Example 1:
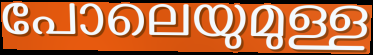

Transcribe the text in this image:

പോലെയുമുള്ള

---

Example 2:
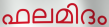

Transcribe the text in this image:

ഫലമിദം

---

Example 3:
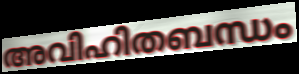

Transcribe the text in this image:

അവിഹിതബന്ധം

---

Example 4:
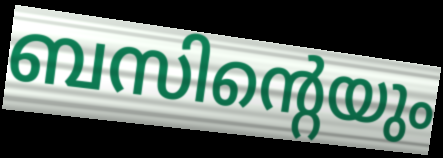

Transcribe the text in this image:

ബസിന്റെയും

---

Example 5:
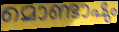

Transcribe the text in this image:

മൊണ്ടാഷും